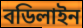
বডিলাইন